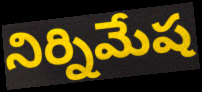
నిర్నిమేష